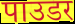
पाउडर